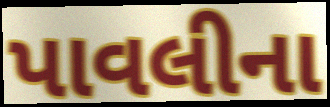
પાવલીના